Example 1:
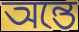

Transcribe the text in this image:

অন্তে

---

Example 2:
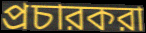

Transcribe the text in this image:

প্রচারকরা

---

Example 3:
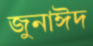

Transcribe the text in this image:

জুনাঈদ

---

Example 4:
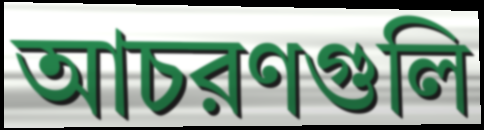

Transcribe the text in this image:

আচরণগুলি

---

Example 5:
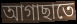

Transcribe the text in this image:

আগাছাতে